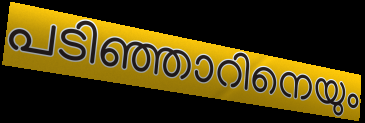
പടിഞ്ഞാറിനെയും